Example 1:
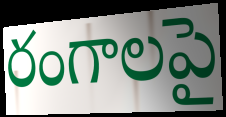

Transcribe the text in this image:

రంగాలపై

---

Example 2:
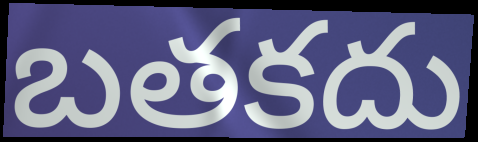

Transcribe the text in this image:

బతకదు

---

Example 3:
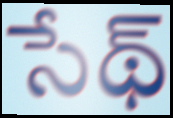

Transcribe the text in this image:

సేథ్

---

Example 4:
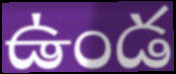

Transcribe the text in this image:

ఉండ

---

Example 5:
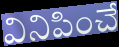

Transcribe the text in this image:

వినిపించే